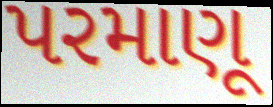
પરમાણૂ